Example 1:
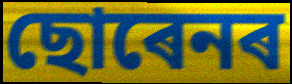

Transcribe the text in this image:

ছোৰেনৰ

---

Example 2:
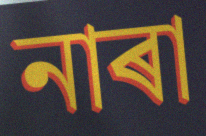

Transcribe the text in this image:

নাৰা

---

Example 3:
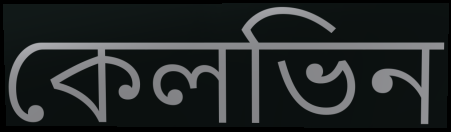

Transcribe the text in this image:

কেলভিন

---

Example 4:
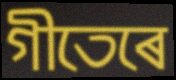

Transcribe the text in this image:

গীতেৰে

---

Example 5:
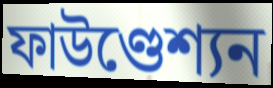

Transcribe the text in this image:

ফাউণ্ডেশ্যন